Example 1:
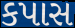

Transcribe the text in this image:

કપાસ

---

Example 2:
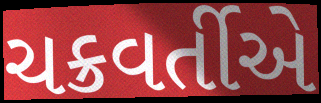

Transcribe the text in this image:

ચક્રવર્તીએ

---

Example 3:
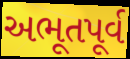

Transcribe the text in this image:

અભૂતપૂર્વ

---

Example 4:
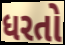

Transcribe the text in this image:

ધરતો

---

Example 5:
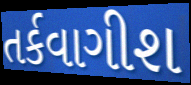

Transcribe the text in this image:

તર્કવાગીશ